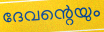
ദേവന്റെയും